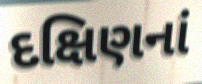
દક્ષિણનાં